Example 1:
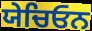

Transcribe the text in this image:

ਯੇਚਿਓਨ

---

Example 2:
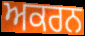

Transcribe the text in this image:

ਅਕਰਨ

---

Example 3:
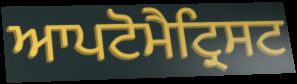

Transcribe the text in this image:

ਆਪਟੋਮੈਟ੍ਰਿਸਟ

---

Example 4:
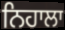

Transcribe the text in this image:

ਨਿਹਾਲਾ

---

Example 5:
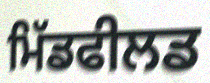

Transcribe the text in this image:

ਮਿੱਡਫੀਲਡ